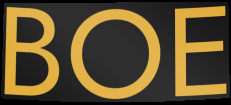
BOE